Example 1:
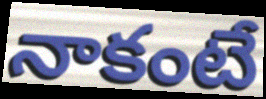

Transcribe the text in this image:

నాకంటే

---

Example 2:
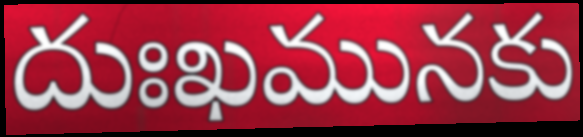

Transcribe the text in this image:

దుఃఖమునకు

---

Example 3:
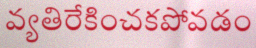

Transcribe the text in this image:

వ్యతిరేకించకపోవడం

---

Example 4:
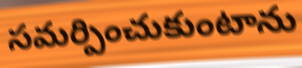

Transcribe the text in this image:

సమర్పించుకుంటాను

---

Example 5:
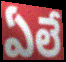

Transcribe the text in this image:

ఏలే